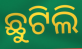
ଛୁଟିଲି